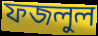
ফজলুল